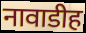
नावाडीह